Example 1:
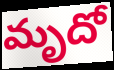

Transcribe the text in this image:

మృదో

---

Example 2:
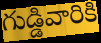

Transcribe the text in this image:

గుడ్డివారికి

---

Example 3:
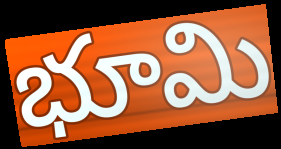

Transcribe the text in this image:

భూమి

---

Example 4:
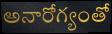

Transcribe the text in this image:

అనారోగ్యంతో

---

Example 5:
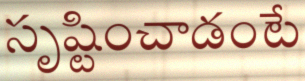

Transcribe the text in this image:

సృష్టించాడంటే